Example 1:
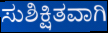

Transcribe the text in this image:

ಸುಶಿಕ್ಷಿತವಾಗಿ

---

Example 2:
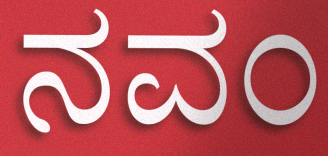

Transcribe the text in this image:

ನವಂ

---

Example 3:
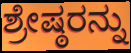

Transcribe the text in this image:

ಶ್ರೇಷ್ಠರನ್ನು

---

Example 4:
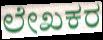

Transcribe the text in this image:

ಲೇಖಕರ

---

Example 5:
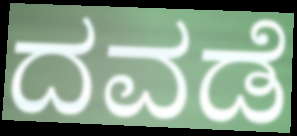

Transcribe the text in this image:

ದವಡೆ